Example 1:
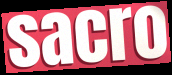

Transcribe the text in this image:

sacro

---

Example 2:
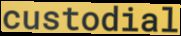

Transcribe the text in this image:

custodial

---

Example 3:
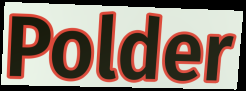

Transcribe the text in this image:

Polder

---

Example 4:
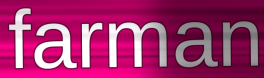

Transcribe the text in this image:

farman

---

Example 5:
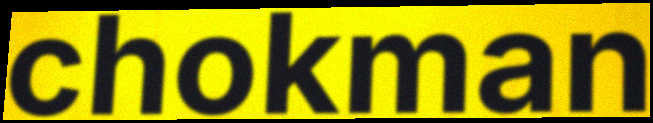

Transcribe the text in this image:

chokman